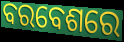
ବରବେଶରେ